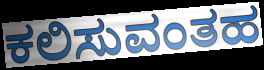
ಕಲಿಸುವಂತಹ